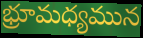
భ్రూమధ్యమున